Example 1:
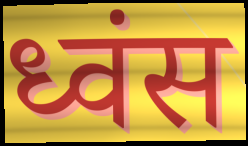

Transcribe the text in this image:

ध्वंस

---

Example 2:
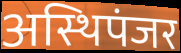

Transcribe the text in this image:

अस्थिपंजर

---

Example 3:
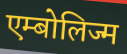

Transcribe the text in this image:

एम्बोलिज्म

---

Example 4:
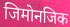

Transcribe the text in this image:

जिमोनजिक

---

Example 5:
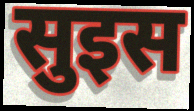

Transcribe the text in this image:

सुइस